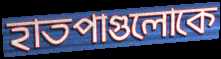
হাতপাগুলোকে